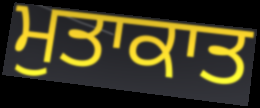
ਮੁਤਾਕਾਤ